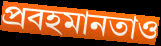
প্রবহমানতাও